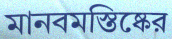
মানবমস্তিষ্কের